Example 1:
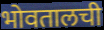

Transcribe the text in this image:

भोवतालची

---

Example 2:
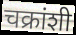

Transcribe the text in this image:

चक्रांशी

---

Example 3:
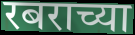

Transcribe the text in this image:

रबराच्या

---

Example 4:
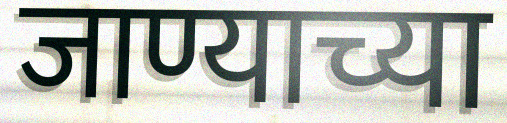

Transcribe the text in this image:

जाण्याच्या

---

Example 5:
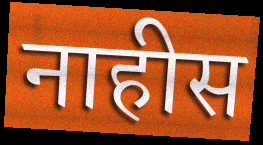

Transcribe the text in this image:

नाहीस